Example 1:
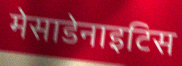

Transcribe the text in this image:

मेसाडेनाइटिस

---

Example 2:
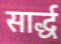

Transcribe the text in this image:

सार्द्ध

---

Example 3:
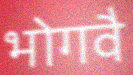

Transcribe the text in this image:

भोगवै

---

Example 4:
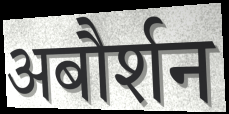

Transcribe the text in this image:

अबौर्शन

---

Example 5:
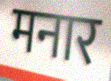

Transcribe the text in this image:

मनार